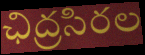
ఛిద్రసిరల